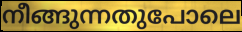
നീങ്ങുന്നതുപോലെ